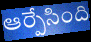
ఆర్పేసింది